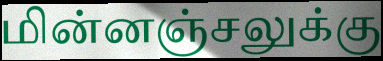
மின்னஞ்சலுக்கு